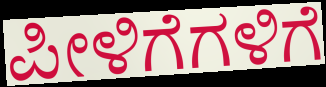
ಪೀಳಿಗೆಗಳಿಗೆ